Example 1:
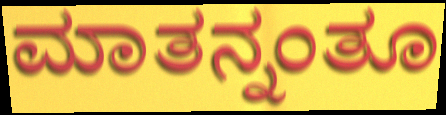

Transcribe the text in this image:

ಮಾತನ್ನಂತೂ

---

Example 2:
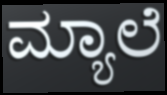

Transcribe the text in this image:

ಮ್ಯಾಲೆ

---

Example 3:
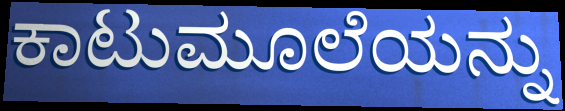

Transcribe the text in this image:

ಕಾಟುಮೂಲೆಯನ್ನು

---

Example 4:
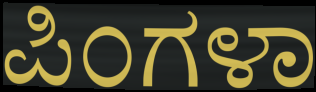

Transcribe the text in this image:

ಪಿಂಗಳಾ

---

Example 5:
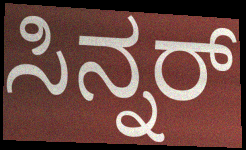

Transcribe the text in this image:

ಸಿನ್ನರ್